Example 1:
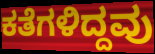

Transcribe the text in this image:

ಕತೆಗಳಿದ್ದವು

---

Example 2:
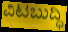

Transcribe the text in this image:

ವಿಟಬುದ್ಧಿ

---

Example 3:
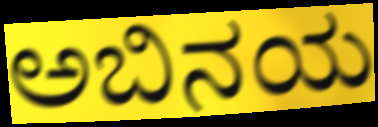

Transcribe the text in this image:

ಅಬಿನಯ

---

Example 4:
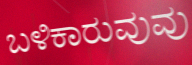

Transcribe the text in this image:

ಬಳಿಕಾರುವುವು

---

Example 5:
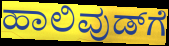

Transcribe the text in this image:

ಹಾಲಿವುಡ್‌ಗೆ